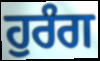
ਹੁਰੰਗ